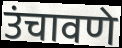
उंचावणे